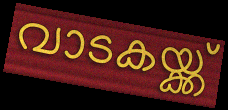
വാടകയ്ക്ക്